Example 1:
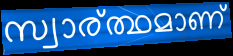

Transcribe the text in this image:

സ്വാര്ത്ഥമാണ്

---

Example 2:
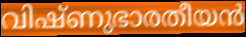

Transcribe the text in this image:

വിഷ്ണുഭാരതീയൻ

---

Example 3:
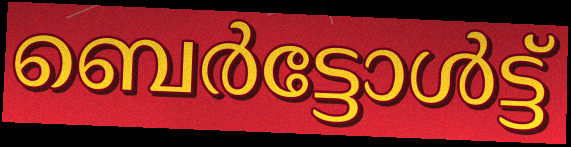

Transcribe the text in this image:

ബെർട്ടോൾട്ട്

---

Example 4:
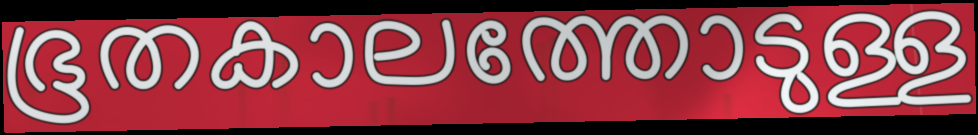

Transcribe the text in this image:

ഭൂതകാലത്തോടുള്ള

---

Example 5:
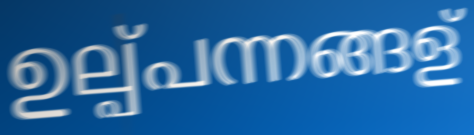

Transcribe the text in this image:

ഉല്പ്പന്നങ്ങള്